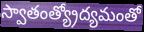
స్వాతంత్య్రోద్యమంతో